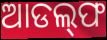
ଆଡଲ୍‌ଫ